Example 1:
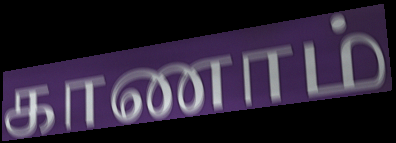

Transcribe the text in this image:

காணாம்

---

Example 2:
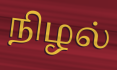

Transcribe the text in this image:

நிழல்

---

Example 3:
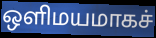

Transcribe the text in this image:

ஒளிமயமாகச்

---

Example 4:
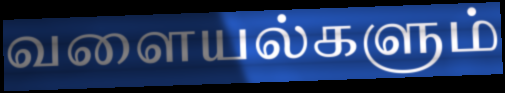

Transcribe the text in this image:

வளையல்களும்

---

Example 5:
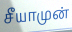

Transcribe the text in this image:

சீயாமுன்